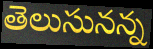
తెలుసునన్న